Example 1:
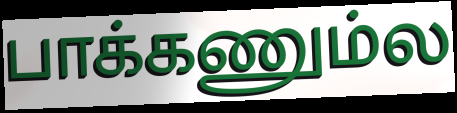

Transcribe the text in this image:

பாக்கணும்ல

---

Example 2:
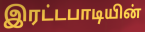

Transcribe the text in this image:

இரட்டபாடியின்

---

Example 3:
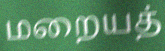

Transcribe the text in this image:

மறையத்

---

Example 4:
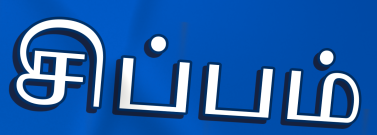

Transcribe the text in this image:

சிப்பம்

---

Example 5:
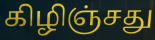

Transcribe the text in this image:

கிழிஞ்சது